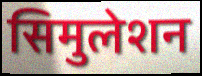
सिमुलेशन